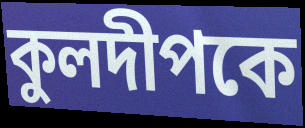
কুলদীপকে